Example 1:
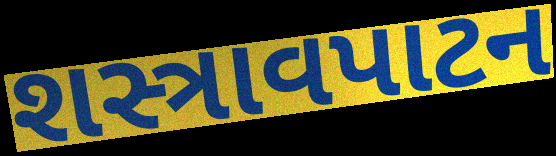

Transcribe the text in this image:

શસ્ત્રાવપાટન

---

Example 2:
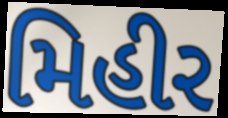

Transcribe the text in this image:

મિહીર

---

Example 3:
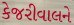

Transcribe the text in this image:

કેજરીવાલને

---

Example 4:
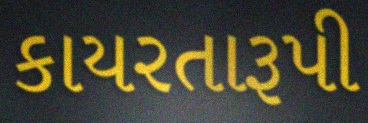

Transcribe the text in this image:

કાયરતારૂપી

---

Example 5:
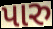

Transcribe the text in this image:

પારુ